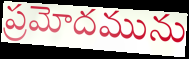
ప్రమోదమును